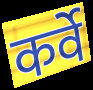
कर्वे